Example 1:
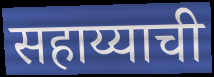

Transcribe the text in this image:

सहाय्याची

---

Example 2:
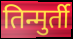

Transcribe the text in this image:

तिन्मुर्ती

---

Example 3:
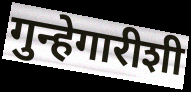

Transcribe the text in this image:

गुन्हेगारीशी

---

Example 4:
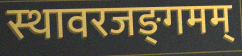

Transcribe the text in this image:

स्थावरजङ्गमम्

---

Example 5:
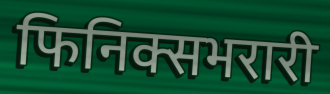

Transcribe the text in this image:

फिनिक्सभरारी